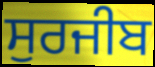
ਸੁਰਜੀਬ